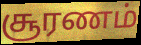
சூரணம்